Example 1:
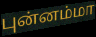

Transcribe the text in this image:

புன்னம்மா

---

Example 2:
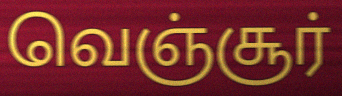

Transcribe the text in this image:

வெஞ்சூர்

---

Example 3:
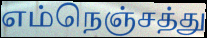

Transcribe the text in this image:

எம்நெஞ்சத்து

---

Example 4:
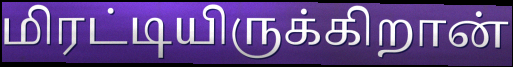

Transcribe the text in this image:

மிரட்டியிருக்கிறான்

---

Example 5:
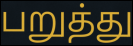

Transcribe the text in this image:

பறுத்து